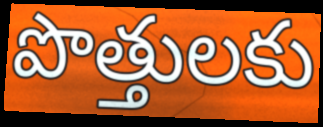
పొత్తులకు